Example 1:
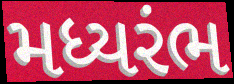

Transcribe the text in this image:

મધ્યરંભ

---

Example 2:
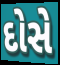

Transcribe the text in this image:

દોસે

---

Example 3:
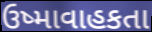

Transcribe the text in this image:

ઉષ્માવાહકતા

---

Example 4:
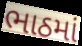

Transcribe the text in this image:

ભાઠમાં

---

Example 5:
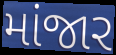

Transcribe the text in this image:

માંજાર